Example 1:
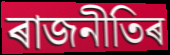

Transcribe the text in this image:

ৰাজনীতিৰ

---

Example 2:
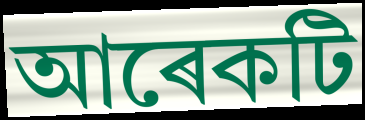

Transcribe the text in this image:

আৰেকটি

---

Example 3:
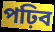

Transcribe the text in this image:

পঢ়িব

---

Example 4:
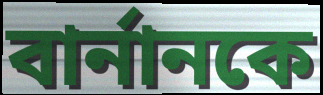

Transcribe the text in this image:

বাৰ্নানকে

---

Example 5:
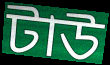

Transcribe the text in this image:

টাউ